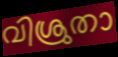
വിശ്രുതാ